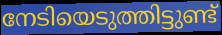
നേടിയെടുത്തിട്ടുണ്ട്